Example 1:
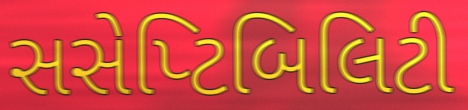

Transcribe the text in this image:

સસેપ્ટિબિલિટી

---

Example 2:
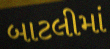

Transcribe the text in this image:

બાટલીમાં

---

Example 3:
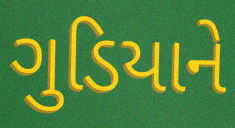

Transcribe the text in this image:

ગુડિયાને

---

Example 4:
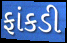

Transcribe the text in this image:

ફાંકડી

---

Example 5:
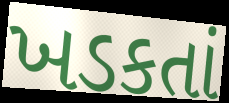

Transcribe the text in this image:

ખડકતાં